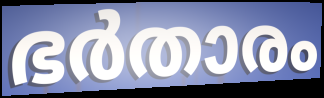
ഭർതാരം